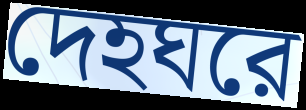
দেহঘরে